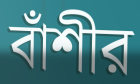
বাঁশীর